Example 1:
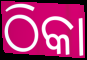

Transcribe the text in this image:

ଠିକା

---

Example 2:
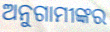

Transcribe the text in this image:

ଅନୁଗାମୀଙ୍କର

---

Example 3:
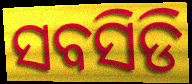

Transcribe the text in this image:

ସବସିଡି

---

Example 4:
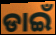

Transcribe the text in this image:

ଡାଇଁ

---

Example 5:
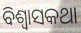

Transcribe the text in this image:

ବିଶ୍ଵାସକଥା